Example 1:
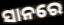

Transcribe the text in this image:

ସାନରେ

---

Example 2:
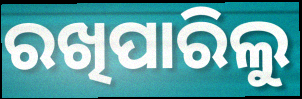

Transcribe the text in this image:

ରଖିପାରିଲୁ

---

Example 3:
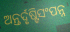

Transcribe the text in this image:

ଅନ୍ତର୍ଦୃଷ୍ଟିସଂପନ୍ନ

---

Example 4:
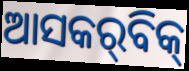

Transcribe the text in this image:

ଆସକର୍‌ବିକ୍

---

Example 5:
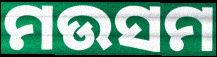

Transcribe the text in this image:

ମଉସମ